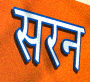
सरन